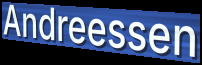
Andreessen